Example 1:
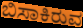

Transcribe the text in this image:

ಬಿಸಾಕಿರುವ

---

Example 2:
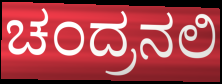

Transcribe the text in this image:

ಚಂದ್ರನಲಿ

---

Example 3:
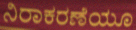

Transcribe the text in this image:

ನಿರಾಕರಣೆಯೂ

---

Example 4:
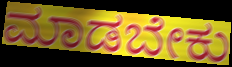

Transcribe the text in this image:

ಮಾಡಬೇಕು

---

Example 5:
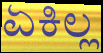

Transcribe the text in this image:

ಏಕಿಲ್ಲ